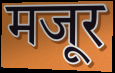
मजूर